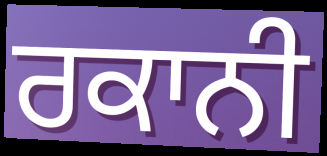
ਰਕਾਨੀ